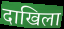
दाखिला